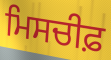
ਮਿਸਚੀਫ਼